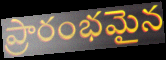
ప్రారంభమైన